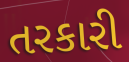
તરકારી